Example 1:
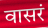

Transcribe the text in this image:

वासरं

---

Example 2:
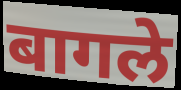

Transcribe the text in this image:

बागले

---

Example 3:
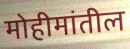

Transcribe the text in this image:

मोहीमांतील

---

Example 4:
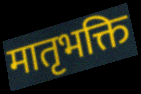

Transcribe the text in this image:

मातृभक्ति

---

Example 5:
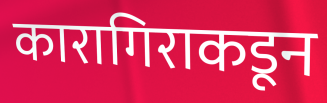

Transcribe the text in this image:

कारागिराकडून